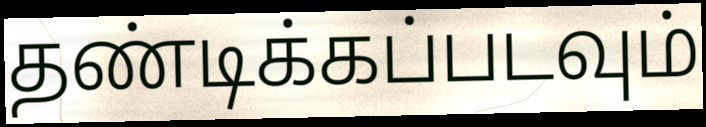
தண்டிக்கப்படவும்